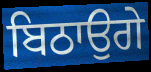
ਬਿਠਾਉਗੇ